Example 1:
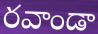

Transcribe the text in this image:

రవాండా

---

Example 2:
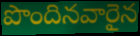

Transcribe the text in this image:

పొందినవారైన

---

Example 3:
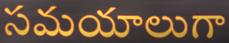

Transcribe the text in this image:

సమయాలుగా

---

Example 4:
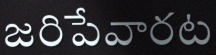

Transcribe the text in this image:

జరిపేవారట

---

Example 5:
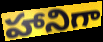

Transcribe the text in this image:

హానిగా